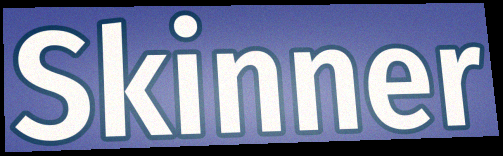
Skinner